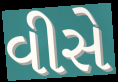
વીસે